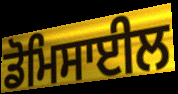
ਡੋਮਿਸਾਈਲ